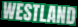
WESTLAND